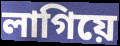
লাগিয়ে